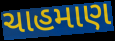
ચાહમાણ